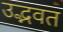
उद्भवत